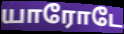
யாரோடே